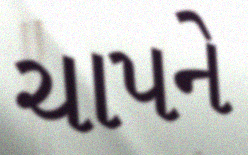
ચાપને